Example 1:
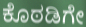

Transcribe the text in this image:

ಕೊಠಡಿಗೇ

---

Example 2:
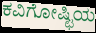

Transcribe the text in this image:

ಕವಿಗೋಷ್ಟಿಯ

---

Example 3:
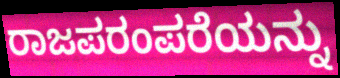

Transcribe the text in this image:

ರಾಜಪರಂಪರೆಯನ್ನು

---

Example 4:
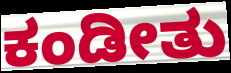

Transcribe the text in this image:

ಕಂಡೀತು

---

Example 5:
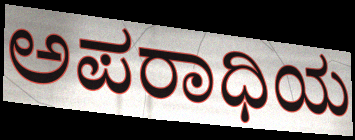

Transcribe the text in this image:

ಅಪರಾಧಿಯ